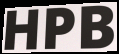
HPB